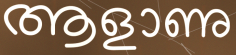
ആളാണു